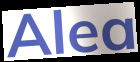
Alea